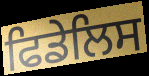
ਫਿਡੇਲਿਸ